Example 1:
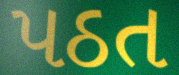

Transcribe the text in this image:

પઠત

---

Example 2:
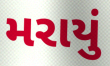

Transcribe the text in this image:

મરાયું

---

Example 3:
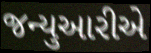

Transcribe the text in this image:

જન્યુઆરીએ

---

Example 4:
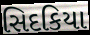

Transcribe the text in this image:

સિદકિયા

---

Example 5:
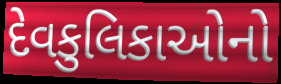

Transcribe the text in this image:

દેવકુલિકાઓનો